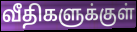
வீதிகளுக்குள்